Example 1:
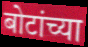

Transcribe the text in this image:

बोटांच्या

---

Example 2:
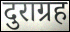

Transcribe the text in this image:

दुराग्रह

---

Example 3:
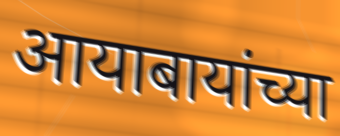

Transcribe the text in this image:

आयाबायांच्या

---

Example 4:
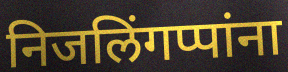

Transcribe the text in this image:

निजलिंगप्पांना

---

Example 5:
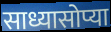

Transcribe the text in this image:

साध्यासोप्या